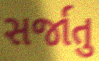
સર્જાતુ